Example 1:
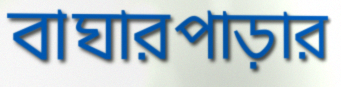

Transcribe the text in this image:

বাঘারপাড়ার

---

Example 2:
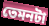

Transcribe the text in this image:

তেমনটা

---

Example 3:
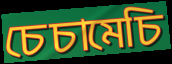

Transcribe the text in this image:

চেচামেচি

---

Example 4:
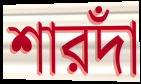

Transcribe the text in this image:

শারদাঁ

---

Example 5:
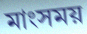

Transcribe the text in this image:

মাংসময়